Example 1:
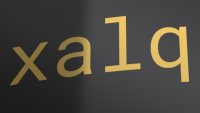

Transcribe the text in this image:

xalq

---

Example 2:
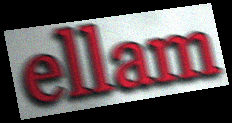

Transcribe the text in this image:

ellam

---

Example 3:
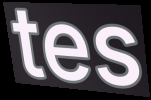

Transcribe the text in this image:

tes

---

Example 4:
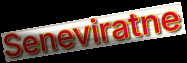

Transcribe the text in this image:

Seneviratne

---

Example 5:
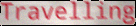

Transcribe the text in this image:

Travelling